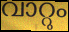
വാറ്റും